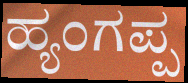
ಹ್ಯಂಗಪ್ಪ